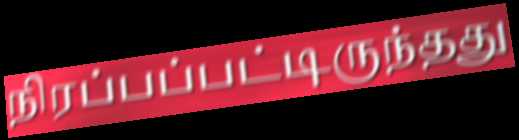
நிரப்பப்பட்டிருந்தது